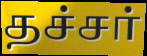
தச்சர்